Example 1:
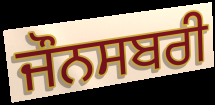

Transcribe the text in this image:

ਜੌਨਸਬਰੀ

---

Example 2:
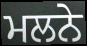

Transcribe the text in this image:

ਮਲਨੇ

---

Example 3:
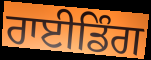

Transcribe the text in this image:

ਰਾਈਡਿੰਗ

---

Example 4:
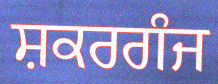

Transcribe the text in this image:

ਸ਼ਕਰਗੰਜ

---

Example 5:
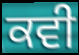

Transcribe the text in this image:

ਕਵੀ